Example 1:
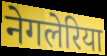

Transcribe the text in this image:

नेगलेरिया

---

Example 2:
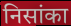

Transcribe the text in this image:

निसांका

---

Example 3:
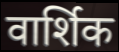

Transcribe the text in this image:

वार्शिक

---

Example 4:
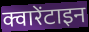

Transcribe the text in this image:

क्वारेंटाइन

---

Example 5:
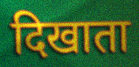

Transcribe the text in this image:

दिखाता